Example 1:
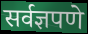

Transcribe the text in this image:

सर्वज्ञपणे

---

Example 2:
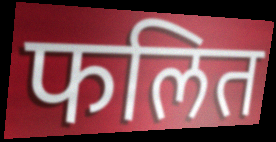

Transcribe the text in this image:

फलित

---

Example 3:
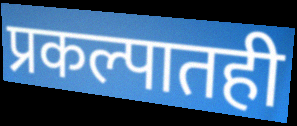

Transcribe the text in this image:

प्रकल्पातही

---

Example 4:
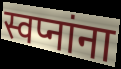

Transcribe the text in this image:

स्वप्नांना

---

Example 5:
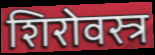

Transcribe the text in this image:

शिरोवस्त्र